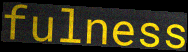
fulness